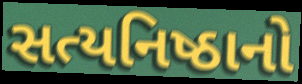
સત્યનિષ્ઠાનો